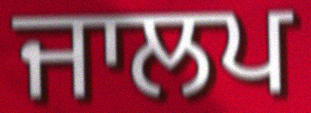
ਜਾਲਪ